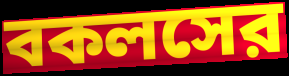
বকলসের